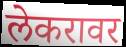
लेकरावर